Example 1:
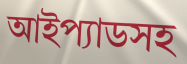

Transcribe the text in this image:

আইপ্যাডসহ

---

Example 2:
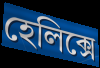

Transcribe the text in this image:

হেলিক্সে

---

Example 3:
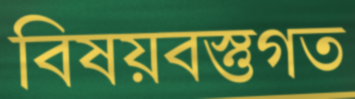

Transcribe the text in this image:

বিষয়বস্তুগত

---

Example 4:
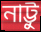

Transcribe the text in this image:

নাট্টু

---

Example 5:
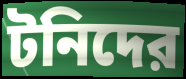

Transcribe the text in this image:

টনিদের